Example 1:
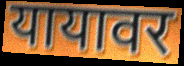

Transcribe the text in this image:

यायावर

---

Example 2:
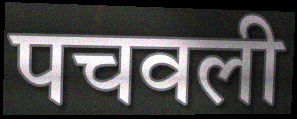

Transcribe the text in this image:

पचवली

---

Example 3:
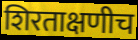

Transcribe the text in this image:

शिरताक्षणीच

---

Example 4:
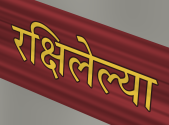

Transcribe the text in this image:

रक्षिलेल्या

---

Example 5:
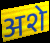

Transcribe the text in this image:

अशे